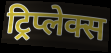
ट्रिप्लेक्स